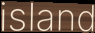
island